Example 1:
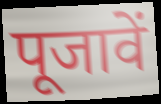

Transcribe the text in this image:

पूजावें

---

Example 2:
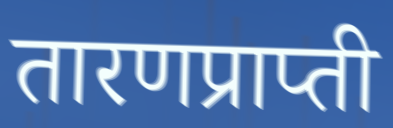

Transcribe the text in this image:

तारणप्राप्ती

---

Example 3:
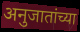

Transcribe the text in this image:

अनुजातांच्या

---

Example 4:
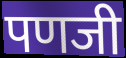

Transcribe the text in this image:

पणजी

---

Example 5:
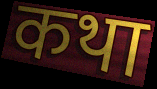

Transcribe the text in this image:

कथा